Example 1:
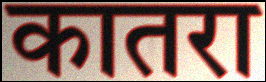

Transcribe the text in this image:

कातरा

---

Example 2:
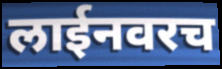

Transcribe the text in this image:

लाईनवरच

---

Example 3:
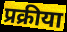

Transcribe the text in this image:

प्रक्रीया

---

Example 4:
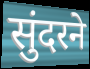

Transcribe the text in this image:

सुंदरने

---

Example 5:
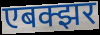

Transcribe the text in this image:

एबक्झर